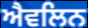
ਐਵਲਿਨ